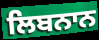
ਲਿਬਨਾਨ